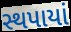
સ્થપાયાં